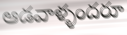
ఆడవాళ్ళందరూ